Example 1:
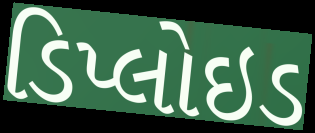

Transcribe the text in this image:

ડિપ્લોઇડ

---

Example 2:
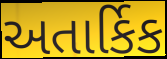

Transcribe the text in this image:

અતાર્કિક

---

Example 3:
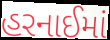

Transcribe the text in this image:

હરનાઈમાં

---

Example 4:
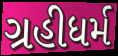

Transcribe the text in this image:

ગ્રહીધર્મ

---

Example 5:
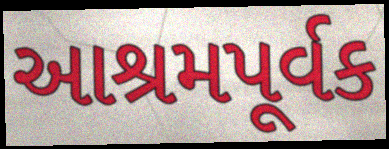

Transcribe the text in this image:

આશ્રમપૂર્વક